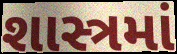
શાસ્ત્રમાં